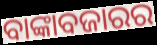
ବାଙ୍କାବଜାରର